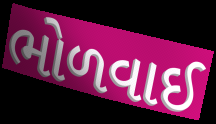
ભોળવાઈ